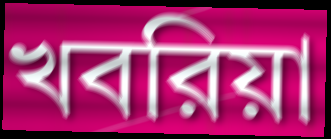
খবরিয়া